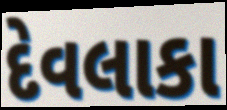
દેવલાકા